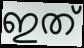
ഇത്